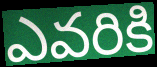
ఎవరికి